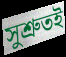
সুশ্ৰুতই